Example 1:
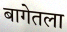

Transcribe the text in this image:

बागेतला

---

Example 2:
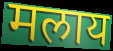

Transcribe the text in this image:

मलाय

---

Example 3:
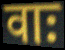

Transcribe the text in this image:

वाः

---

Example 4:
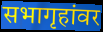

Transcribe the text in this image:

सभागृहांवर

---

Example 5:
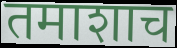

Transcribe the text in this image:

तमाशाच